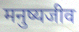
मनुष्यजीव